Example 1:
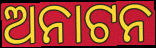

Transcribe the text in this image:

ଅନାଟନ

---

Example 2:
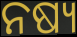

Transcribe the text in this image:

ନଷ୍ଯ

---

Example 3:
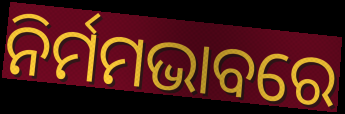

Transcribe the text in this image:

ନିର୍ମମଭାବରେ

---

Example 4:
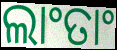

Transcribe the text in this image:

ଲାଂତାଂ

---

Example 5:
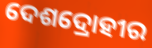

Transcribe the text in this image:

ଦେଶଦ୍ରୋହୀର